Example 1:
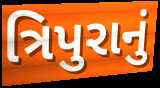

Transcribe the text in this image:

ત્રિપુરાનું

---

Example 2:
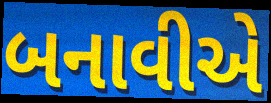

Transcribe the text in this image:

બનાવીએ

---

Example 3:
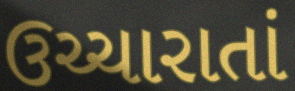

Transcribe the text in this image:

ઉચ્ચારાતાં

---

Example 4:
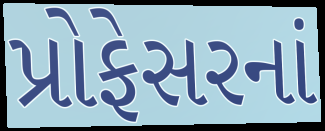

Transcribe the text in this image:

પ્રોફેસરનાં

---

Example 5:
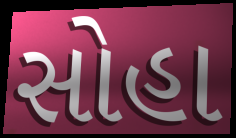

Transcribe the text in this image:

સોહા